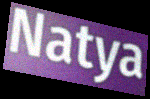
Natya